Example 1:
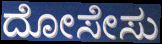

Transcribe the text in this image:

ದೋಸೇಸು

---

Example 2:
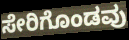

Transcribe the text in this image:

ಸೇರಿಗೊಂಡವು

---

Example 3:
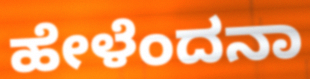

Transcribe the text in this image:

ಹೇಳೆಂದನಾ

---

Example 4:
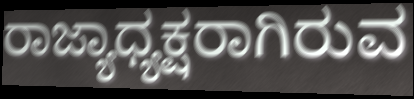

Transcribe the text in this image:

ರಾಜ್ಯಾಧ್ಯಕ್ಷರಾಗಿರುವ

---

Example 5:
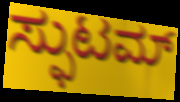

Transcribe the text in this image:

ಸ್ಫುಟಮ್